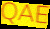
QAE